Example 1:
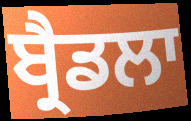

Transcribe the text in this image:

ਬ੍ਰੈਡਲਾ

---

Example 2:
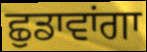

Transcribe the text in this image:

ਛੁਡਾਵਾਂਗਾ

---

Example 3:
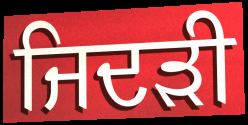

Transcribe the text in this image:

ਜਿਦੜੀ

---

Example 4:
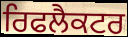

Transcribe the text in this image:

ਰਿਫਲੈਕਟਰ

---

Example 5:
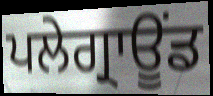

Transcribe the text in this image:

ਪਲੇਗ੍ਰਾਊਂਡ